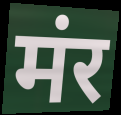
मंर